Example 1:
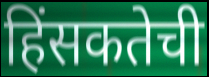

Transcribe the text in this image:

हिंसकतेची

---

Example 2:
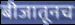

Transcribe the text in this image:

बीजातूनच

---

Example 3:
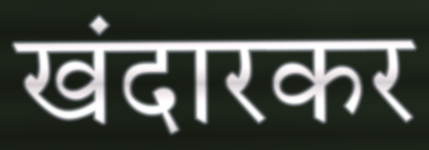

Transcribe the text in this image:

खंदारकर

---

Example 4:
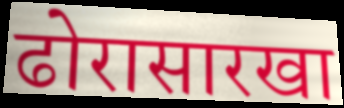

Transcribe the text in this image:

ढोरासारखा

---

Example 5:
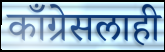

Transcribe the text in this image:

काँग्रेसलाही